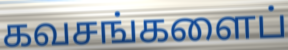
கவசங்களைப்